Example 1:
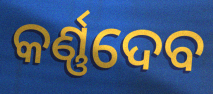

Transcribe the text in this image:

କର୍ଣ୍ଣଦେବ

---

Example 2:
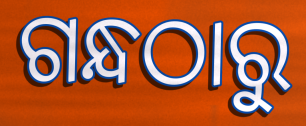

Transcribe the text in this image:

ଗନ୍ଧଠାରୁ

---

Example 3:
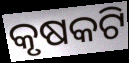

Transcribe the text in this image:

କୃଷକଟି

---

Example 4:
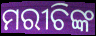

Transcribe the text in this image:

ମରୀଚିଙ୍କ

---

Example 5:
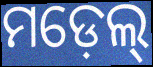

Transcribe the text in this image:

ମଡ଼େଲ୍